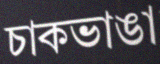
চাকভাঙা